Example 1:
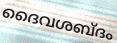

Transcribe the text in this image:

ദൈവശബ്ദം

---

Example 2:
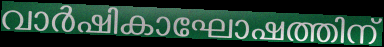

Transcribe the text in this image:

വാർഷികാഘോഷത്തിന്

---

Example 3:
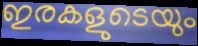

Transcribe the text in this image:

ഇരകളുടെയും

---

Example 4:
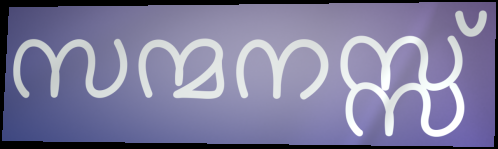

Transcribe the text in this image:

സന്മനസ്സ്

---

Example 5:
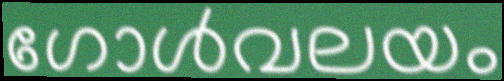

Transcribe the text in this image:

ഗോൾവലയം